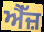
ਐੱਜ਼